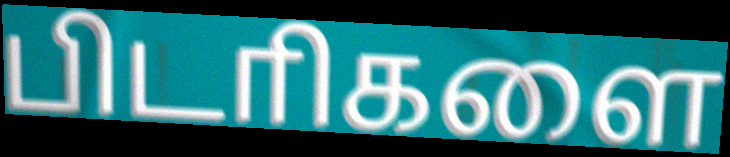
பிடரிகளை